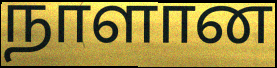
நாளான